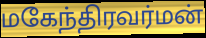
மகேந்திரவர்மன்